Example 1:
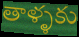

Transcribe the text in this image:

తాళ్ళకు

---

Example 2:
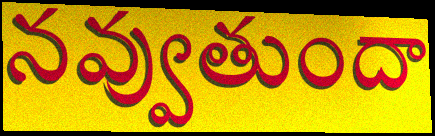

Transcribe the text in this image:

నవ్వుతుందా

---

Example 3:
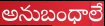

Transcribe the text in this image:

అనుబంధాలే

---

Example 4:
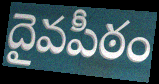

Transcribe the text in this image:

దైవపీఠం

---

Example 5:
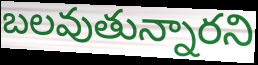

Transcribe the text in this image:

బలవుతున్నారని